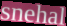
snehal